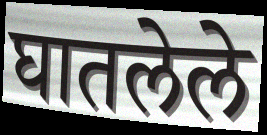
घातलेले